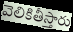
వెలికితీస్తారు